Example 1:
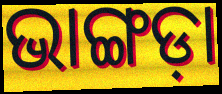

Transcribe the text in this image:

ଭାଙ୍ଗଡ଼ା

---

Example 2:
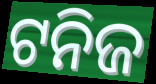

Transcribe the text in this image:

ଟନିଜ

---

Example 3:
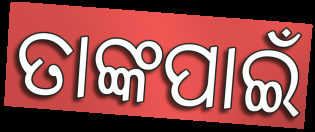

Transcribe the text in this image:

ତାଙ୍କପାଇଁ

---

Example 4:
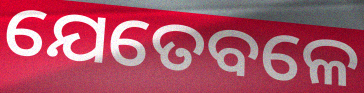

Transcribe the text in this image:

ଯେତେବଳେ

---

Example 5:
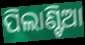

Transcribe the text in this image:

ପିଲାଣ୍ଟିଆ